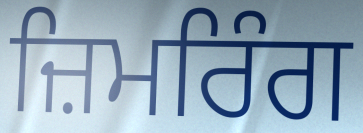
ਜ਼ਿਮਰਿੰਗ